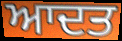
ਆਦਤ